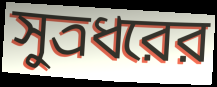
সুত্রধরের